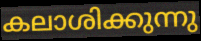
കലാശിക്കുന്നു